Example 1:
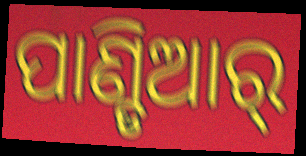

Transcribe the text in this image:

ପାଣ୍ଡିଆର୍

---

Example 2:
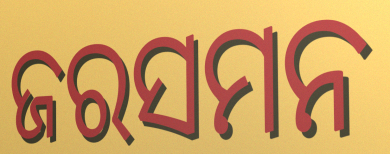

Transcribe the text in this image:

ଜରସମନ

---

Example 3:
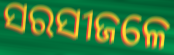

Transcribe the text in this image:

ସରସୀଜଳେ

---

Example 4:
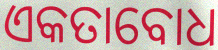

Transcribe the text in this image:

ଏକତାବୋଧ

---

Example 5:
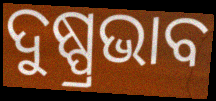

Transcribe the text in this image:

ଦୁଷ୍ପ୍ରଭାବ